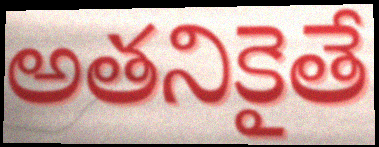
అతనికైతే